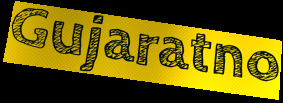
Gujaratno